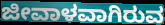
ಜೀವಾಳವಾಗಿರುವ